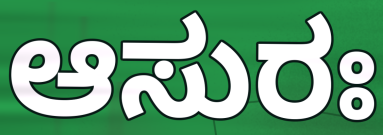
ಆಸುರಃ